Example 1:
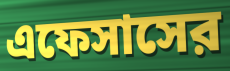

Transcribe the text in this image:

এফেসাসের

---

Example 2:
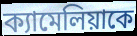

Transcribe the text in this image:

ক্যামেলিয়াকে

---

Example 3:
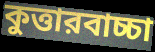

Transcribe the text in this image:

কুত্তারবাচ্চা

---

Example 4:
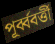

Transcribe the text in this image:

পূর্ব্ববর্ত্তী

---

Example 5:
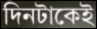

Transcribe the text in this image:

দিনটাকেই